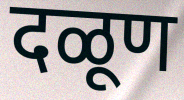
दळूण